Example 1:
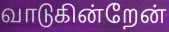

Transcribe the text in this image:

வாடுகின்றேன்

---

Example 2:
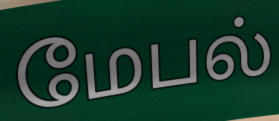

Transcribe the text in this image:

மேபல்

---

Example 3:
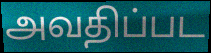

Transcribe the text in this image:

அவதிப்பட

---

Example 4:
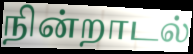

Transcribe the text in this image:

நின்றாடல்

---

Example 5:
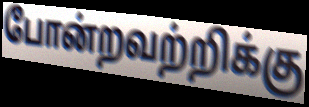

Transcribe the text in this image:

போன்றவற்றிக்கு